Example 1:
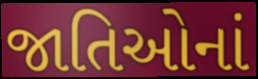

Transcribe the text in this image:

જાતિઓનાં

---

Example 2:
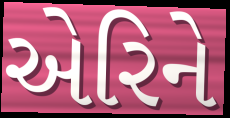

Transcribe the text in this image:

એરિને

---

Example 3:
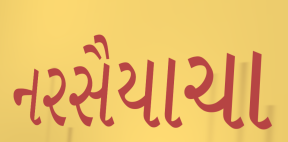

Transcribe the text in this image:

નરસૈયાચા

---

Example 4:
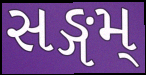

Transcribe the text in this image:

સઙ્ગમ્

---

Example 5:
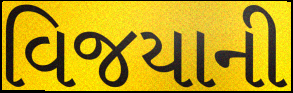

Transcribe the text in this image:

વિજયાની